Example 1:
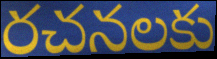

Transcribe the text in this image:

రచనలకు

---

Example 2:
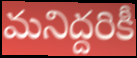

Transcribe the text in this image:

మనిద్దరికీ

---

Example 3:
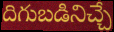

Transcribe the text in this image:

దిగుబడినిచ్చే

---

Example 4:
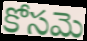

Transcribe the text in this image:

కోసమె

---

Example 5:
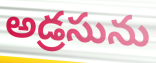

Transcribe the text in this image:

అడ్రసును